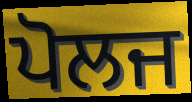
ਪੋਲਜ